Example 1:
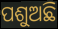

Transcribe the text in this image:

ପଶୁଅଛି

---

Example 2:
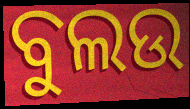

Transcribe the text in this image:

ବୁଲଉ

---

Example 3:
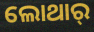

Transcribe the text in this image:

ଲୋଥାର୍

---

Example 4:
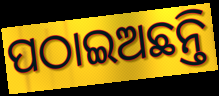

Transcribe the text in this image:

ପଠାଇଅଛନ୍ତି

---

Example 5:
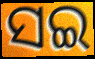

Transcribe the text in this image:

ସଇ